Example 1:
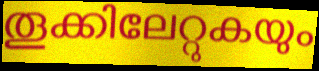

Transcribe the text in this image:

തൂക്കിലേറ്റുകയും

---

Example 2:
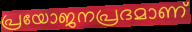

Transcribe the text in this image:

പ്രയോജനപ്രദമാണ്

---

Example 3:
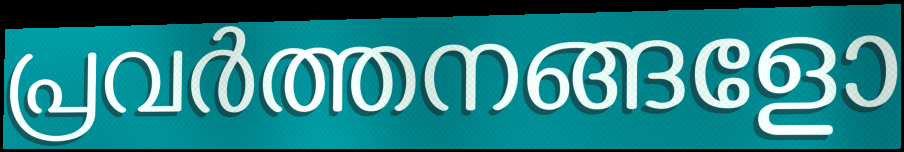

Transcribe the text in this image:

പ്രവർത്തനങ്ങളോ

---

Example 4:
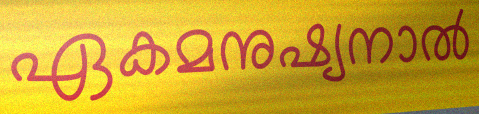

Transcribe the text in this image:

ഏകമനുഷ്യനാൽ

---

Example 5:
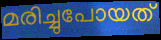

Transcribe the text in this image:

മരിച്ചുപോയത്